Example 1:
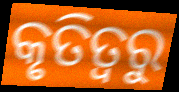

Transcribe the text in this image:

କୃତିତ୍ଵରୁ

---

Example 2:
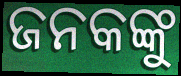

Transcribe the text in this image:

ଜନକଙ୍କୁ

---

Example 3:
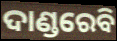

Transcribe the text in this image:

ଦାଣ୍ଡରେବି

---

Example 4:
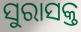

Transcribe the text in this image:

ସୁରାସକ୍ତ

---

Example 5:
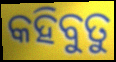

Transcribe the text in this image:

କହିବୁତୁ